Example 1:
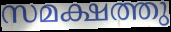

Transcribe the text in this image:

സമക്ഷത്തു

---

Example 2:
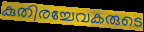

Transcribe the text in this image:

കുതിരച്ചേവകരുടെ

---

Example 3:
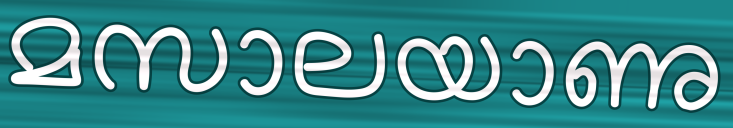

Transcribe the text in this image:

മസാലയാണു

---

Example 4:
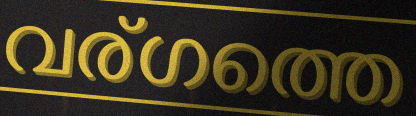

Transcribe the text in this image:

വര്ഗത്തെ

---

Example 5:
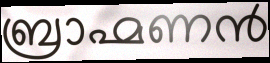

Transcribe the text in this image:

ബ്രാഹ്മണൻ